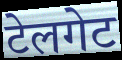
टेलगेट